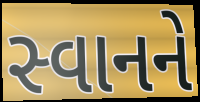
સ્વાનને